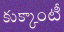
కుక్కాంటీ